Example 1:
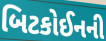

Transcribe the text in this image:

બિટકોઈનની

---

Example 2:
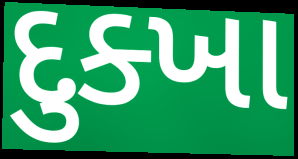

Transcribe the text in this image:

દુક્ખા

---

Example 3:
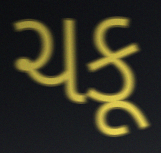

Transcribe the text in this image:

ચકૂ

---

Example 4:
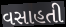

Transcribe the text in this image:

વસાહતી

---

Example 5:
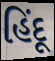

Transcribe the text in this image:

હિંદૂ